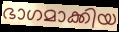
ഭാഗമാക്കിയ